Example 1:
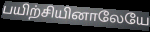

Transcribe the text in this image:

பயிற்சியினாலேயே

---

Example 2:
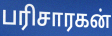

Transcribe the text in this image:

பரிசாரகன்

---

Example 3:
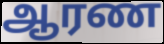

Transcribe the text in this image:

ஆரண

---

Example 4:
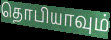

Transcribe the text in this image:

தொபியாவும்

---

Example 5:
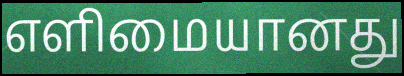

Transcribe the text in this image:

எளிமையானது